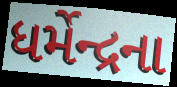
ધર્મેન્દ્રના